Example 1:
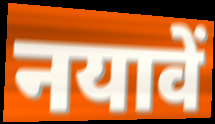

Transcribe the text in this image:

नयावें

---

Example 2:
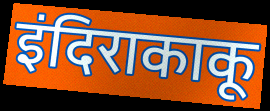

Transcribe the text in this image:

इंदिराकाकू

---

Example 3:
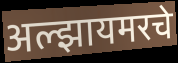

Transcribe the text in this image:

अल्झायमरचे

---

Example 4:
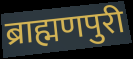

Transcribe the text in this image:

ब्राह्मणपुरी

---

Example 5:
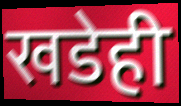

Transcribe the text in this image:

खडेही